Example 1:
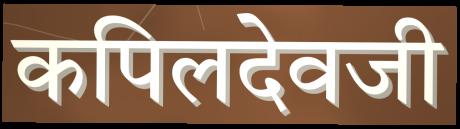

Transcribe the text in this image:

कपिलदेवजी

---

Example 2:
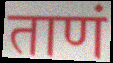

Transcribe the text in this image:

ताणं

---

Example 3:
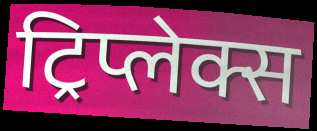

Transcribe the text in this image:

ट्रिप्लेक्स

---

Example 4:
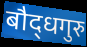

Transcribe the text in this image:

बौद्धगुरु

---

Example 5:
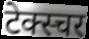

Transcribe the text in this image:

टेक्स्चर